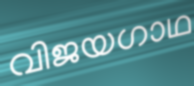
വിജയഗാഥ